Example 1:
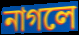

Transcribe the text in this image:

নাগলে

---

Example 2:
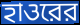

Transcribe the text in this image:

হাওরের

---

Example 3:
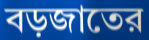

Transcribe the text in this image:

বড়জাতের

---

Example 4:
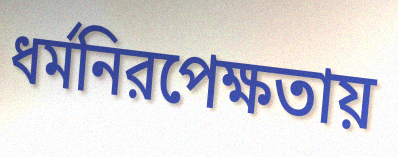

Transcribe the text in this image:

ধর্মনিরপেক্ষতায়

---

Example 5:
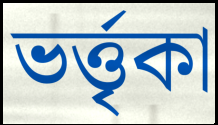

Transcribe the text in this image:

ভর্ত্তৃকা